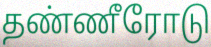
தண்ணீரோடு